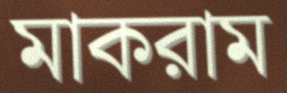
মাকরাম